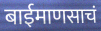
बाईमाणसाचं